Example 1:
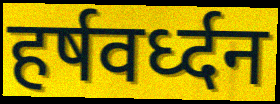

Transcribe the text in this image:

हर्षवर्ध्दन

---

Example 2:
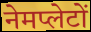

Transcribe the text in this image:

नेमप्लेटों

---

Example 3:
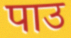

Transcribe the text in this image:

पाउ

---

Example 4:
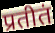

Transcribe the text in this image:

प्रतीतं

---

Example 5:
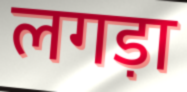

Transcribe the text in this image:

लगड़ा